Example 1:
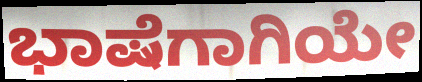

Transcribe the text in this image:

ಭಾಷೆಗಾಗಿಯೇ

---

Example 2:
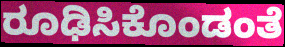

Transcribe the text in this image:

ರೂಢಿಸಿಕೊಂಡಂತೆ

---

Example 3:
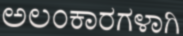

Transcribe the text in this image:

ಅಲಂಕಾರಗಳಾಗಿ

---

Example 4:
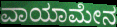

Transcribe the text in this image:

ವಾಯಾಮೇನ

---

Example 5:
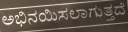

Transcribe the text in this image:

ಅಭಿನಯಿಸಲಾಗುತ್ತದೆ